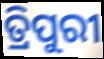
ତ୍ରିପୁରୀ